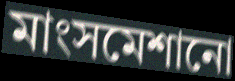
মাংসমেশানো